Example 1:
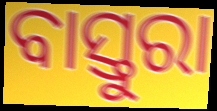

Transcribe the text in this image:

ବାସ୍ତୁରା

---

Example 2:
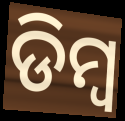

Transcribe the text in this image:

ଡିମ୍ବ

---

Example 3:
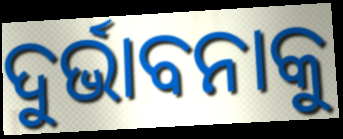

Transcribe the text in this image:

ଦୁର୍ଭାବନାକୁ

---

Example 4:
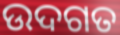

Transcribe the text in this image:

ଉଦଗତ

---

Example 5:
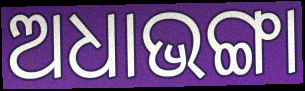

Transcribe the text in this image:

ଅଧାଭଙ୍ଗା